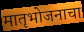
मातृभोजनाचा